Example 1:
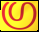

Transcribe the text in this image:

ഗ്ര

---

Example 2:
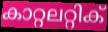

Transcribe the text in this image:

കാറ്റലറ്റിക്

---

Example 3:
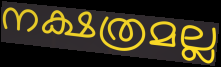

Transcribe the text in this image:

നക്ഷത്രമല്ല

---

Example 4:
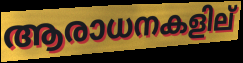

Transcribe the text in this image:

ആരാധനകളില്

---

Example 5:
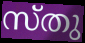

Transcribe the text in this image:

സ്തു